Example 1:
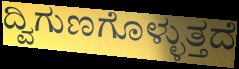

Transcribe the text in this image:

ದ್ವಿಗುಣಗೊಳ್ಳುತ್ತದೆ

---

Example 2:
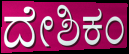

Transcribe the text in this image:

ದೇಶಿಕಂ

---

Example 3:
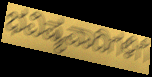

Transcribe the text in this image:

ಭವಿಷ್ಯವಾದಿಗಳಿಗೆ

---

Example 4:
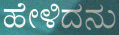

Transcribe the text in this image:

ಹೇಳಿದನು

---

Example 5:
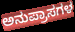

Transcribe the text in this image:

ಅನುಪ್ರಾಸಗಳ